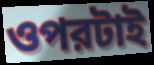
ওপরটাই